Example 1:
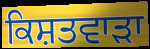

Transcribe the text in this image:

ਕਿਸ਼ਤਵਾੜਾ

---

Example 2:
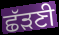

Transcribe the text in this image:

ਛੱੜਣੀ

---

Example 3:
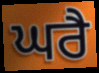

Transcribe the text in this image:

ਘਰੈ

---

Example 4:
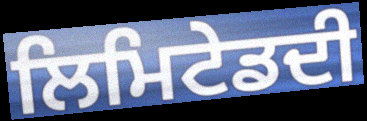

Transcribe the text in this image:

ਲਿਮਿਟੇਡਦੀ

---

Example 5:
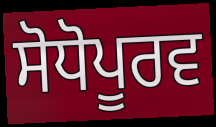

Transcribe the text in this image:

ਸੋਧੋਪੂਰਵ